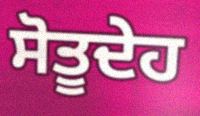
ਸੋਤੂਦੇਹ